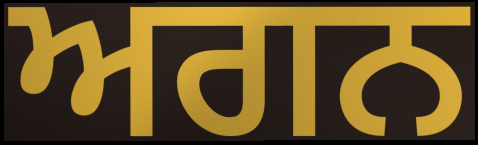
ਅਗਨ